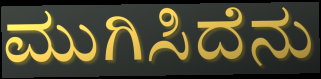
ಮುಗಿಸಿದೆನು